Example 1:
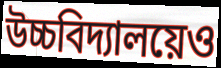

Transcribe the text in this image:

উচ্চবিদ্যালয়েও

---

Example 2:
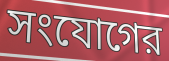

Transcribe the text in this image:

সংযোগের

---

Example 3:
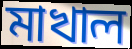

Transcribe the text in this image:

মাখাল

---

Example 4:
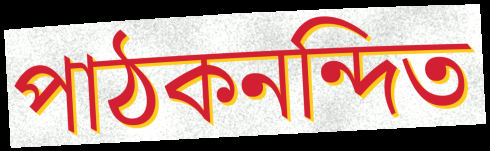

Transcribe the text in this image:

পাঠকনন্দিত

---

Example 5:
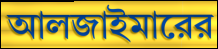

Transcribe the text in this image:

আলজাইমারের